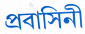
প্রবাসিনী